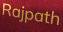
Rajpath